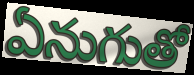
ఏనుగుతో